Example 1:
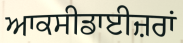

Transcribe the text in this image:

ਆਕਸੀਡਾਈਜ਼ਰਾਂ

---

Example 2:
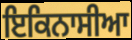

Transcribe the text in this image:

ਇਕਿਨਾਸੀਆ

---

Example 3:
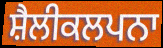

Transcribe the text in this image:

ਸ਼ੈਲੀਕਲਪਨਾ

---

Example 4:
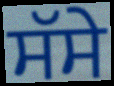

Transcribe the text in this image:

ਸੱਸੇ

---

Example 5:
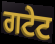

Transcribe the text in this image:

ਗਟੇਟ